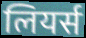
लियर्स